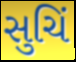
સુચિં